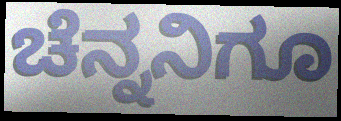
ಚೆನ್ನನಿಗೂ